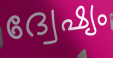
ദ്വേഷ്യം